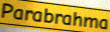
Parabrahma